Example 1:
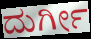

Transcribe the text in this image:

ದುರ್ಗೀ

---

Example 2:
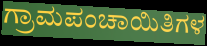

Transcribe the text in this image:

ಗ್ರಾಮಪಂಚಾಯಿತಿಗಳ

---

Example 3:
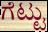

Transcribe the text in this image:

ಗೆಟ್ಟು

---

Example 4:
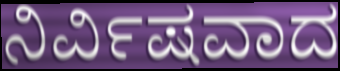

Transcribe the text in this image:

ನಿರ್ವಿಷವಾದ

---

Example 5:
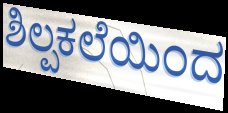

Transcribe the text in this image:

ಶಿಲ್ಪಕಲೆಯಿಂದ